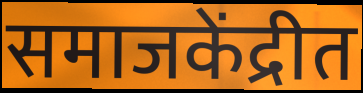
समाजकेंद्रीत